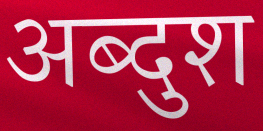
अब्दुश